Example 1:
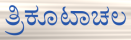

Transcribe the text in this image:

ತ್ರಿಕೂಟಾಚಲ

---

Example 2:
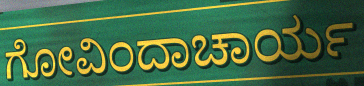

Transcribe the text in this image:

ಗೋವಿಂದಾಚಾರ್ಯ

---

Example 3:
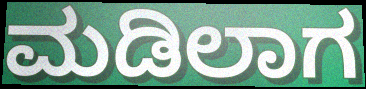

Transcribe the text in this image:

ಮಡಿಲಾಗ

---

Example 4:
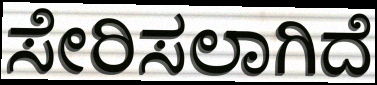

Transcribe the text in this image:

ಸೇರಿಸಲಾಗಿದೆ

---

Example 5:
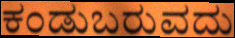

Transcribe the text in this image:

ಕಂಡುಬರುವದು